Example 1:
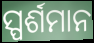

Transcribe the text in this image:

ସ୍ପର୍ଶମାନ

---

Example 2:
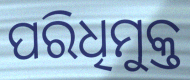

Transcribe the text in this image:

ପରିଧିମୁକ୍ତ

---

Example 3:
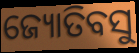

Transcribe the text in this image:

ଜ୍ୟୋତିବସୁ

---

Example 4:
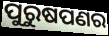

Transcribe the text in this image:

ପୁରୁଷପଣର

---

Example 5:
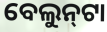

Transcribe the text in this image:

ବେଲୁନ୍‌ଟା